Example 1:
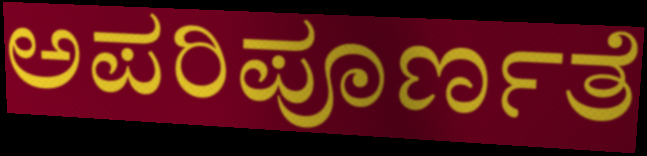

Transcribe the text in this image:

ಅಪರಿಪೂರ್ಣತೆ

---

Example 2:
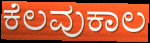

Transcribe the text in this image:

ಕೆಲವುಕಾಲ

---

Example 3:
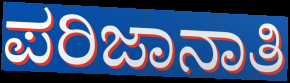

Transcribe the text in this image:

ಪರಿಜಾನಾತಿ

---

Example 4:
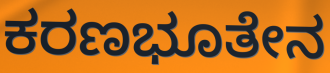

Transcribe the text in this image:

ಕರಣಭೂತೇನ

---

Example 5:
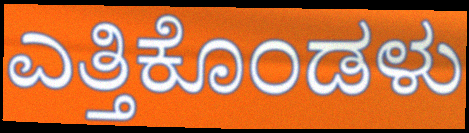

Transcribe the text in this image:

ಎತ್ತಿಕೊಂಡಳು